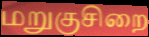
மறுகுசிறை